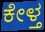
ಕೇಳ್ತ